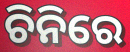
ଚିନିରେ